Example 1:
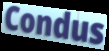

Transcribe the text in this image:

Condus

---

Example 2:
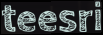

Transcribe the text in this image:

teesri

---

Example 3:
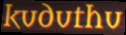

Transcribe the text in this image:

kuduthu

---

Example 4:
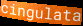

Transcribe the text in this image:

cingulata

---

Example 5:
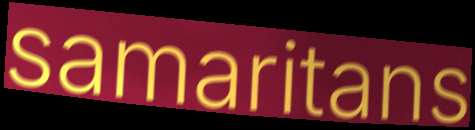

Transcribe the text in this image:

samaritans